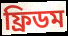
ফ্ৰিডম